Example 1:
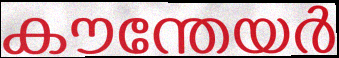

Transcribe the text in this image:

കൗന്തേയർ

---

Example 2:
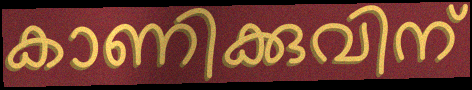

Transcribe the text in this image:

കാണിക്കുവിന്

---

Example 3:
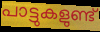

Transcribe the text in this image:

പാട്ടുകളുണ്ട്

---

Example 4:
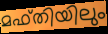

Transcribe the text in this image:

മഫ്തിയിലും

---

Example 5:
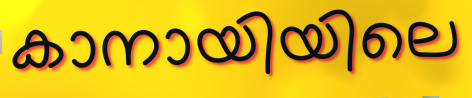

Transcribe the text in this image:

കാനായിയിലെ